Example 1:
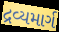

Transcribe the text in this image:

દ્રવ્યમાર્ગ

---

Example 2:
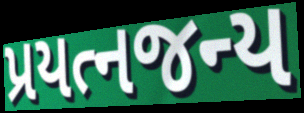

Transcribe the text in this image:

પ્રયત્નજન્ય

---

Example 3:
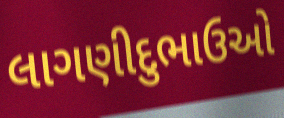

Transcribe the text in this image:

લાગણીદુભાઉઓ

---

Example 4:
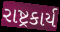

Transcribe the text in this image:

રાષ્ટ્રકાર્ય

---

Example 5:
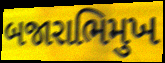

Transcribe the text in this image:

બજારાભિમુખ